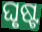
ଘୃଷ୍ଟ